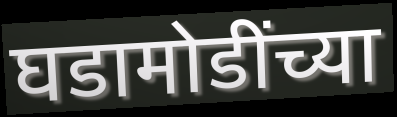
घडामोडींच्या